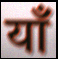
याँ